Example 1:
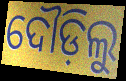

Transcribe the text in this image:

ଦୌଡ଼ିଲୁ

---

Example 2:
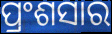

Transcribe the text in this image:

ପ୍ରଂଶସାର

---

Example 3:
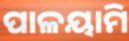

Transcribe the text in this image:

ପାଳୟାମି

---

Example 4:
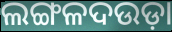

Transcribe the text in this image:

ଲଙ୍ଗଳଦଉଡ଼ା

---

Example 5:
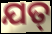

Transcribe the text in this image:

ଯତ୍